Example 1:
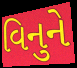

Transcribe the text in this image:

વિનુને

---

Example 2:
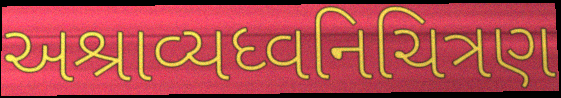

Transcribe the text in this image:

અશ્રાવ્યધ્વનિચિત્રણ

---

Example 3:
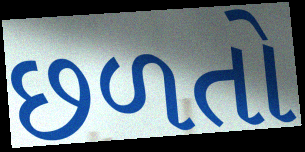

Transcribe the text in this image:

છળતો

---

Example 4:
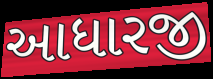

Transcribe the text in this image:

આધારજી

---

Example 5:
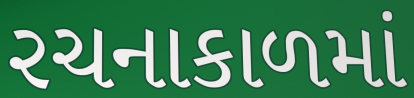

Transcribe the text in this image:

રચનાકાળમાં